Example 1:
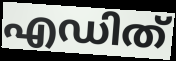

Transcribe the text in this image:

എഡിത്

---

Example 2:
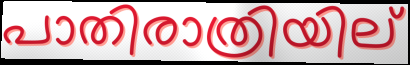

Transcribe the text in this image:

പാതിരാത്രിയില്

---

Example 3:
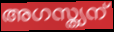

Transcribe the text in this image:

അഗസ്ത്യന്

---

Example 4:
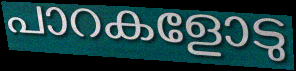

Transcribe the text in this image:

പാറകളോടു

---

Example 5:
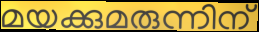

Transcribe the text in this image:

മയക്കുമരുന്നിന്